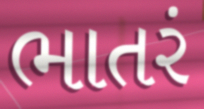
ભાતરં